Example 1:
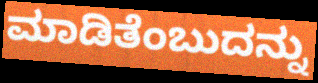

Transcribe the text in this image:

ಮಾಡಿತೆಂಬುದನ್ನು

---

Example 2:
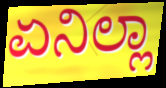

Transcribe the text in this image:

ಏನಿಲ್ಲಾ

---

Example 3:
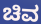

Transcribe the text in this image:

ಚಿವ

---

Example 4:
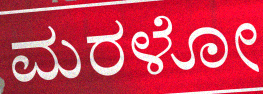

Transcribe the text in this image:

ಮರಳೋ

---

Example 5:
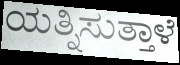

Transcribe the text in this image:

ಯತ್ನಿಸುತ್ತಾಳೆ